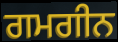
ਗਮਗੀਨ